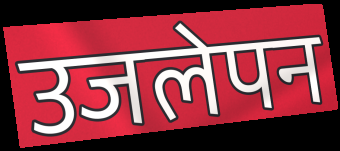
उजलेपन